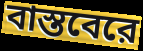
বাস্তবেরে